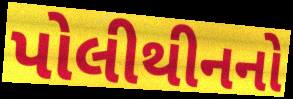
પોલીથીનનો